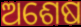
ଅଶେଷ